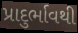
પ્રાદુર્ભાવથી